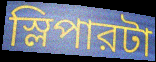
স্লিপারটা